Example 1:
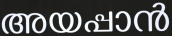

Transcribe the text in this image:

അയപ്പാൻ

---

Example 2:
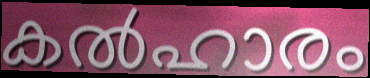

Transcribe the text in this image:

കൽഹാരം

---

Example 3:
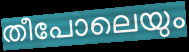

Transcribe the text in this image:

തീപോലെയും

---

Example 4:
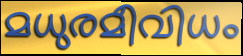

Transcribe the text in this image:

മധുരമീവിധം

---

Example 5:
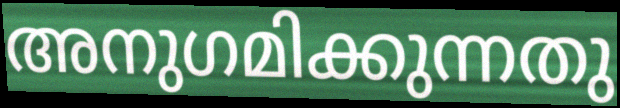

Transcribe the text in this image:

അനുഗമിക്കുന്നതു